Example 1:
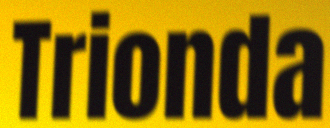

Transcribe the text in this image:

Trionda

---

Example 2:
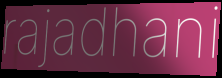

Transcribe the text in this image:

rajadhani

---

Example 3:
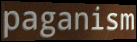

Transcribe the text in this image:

paganism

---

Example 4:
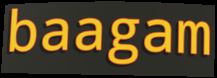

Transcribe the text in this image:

baagam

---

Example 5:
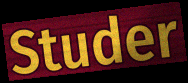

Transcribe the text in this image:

Studer